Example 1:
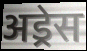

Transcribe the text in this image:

अड्रेस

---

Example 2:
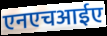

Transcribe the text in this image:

एनएचआईए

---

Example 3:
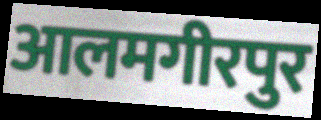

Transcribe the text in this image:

आलमगीरपुर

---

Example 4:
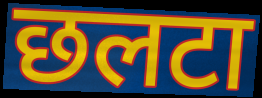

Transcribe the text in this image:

छलटा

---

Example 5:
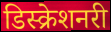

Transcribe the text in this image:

डिस्क्रेशनरी